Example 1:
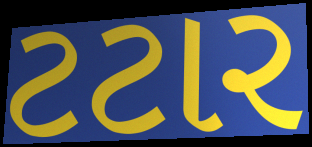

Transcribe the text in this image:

ટટાર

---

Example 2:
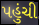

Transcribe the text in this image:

પહુંચી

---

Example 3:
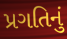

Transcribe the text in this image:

પ્રગતિનું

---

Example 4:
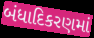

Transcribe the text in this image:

બંધાદિકરણમાં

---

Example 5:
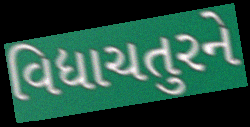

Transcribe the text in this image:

વિદ્યાચતુરને